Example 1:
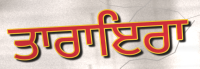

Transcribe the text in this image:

ਤਾਰਾਇਰਾ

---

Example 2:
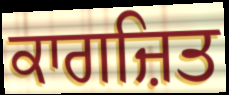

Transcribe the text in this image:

ਕਾਗਜ਼ਿਤ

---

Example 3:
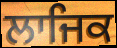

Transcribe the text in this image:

ਲਾਜਿਕ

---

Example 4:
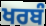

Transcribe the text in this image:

ਖਰਬੰ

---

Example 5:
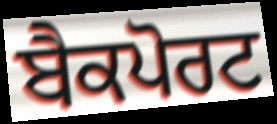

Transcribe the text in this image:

ਬੈਕਪੋਰਟ